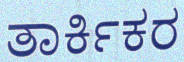
ತಾರ್ಕಿಕರ